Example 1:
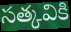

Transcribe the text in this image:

సత్కవికి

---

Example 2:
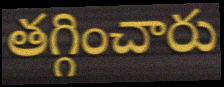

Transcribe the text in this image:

తగ్గించారు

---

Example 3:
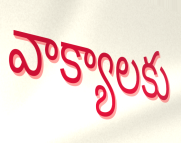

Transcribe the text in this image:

వాక్యాలకు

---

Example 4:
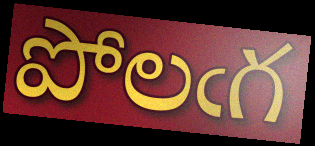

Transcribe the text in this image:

పోలఁగ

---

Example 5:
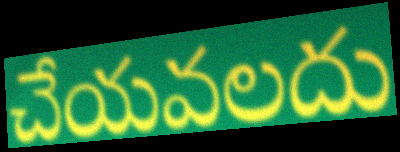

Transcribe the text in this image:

చేయవలదు